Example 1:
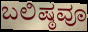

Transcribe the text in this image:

ಬಲಿಷ್ಠವೂ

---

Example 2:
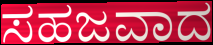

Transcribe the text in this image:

ಸಹಜವಾದ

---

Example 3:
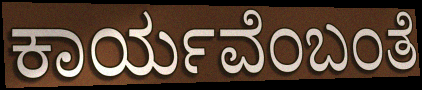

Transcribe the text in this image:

ಕಾರ್ಯವೆಂಬಂತೆ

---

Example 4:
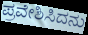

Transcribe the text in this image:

ಪ್ರವೇಶಿಸಿದನು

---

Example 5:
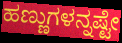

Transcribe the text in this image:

ಹಣ್ಣುಗಳನ್ನಷ್ಟೇ